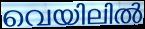
വെയിലിൽ